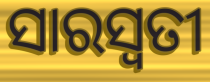
ସାରସ୍ୱତୀ